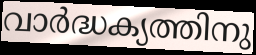
വാർദ്ധക്യത്തിനു